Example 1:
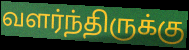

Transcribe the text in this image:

வளர்ந்திருக்கு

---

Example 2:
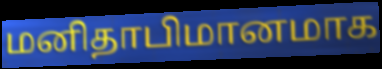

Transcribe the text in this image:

மனிதாபிமானமாக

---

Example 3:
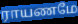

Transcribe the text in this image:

ராயணமே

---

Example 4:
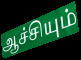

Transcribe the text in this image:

ஆச்சியும்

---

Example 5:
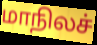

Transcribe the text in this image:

மாநிலச்